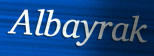
Albayrak